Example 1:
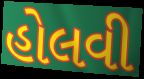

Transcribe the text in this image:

હોલવી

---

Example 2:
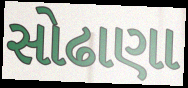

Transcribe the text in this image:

સોઢાણા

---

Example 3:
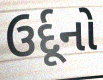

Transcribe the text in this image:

ઉર્દૂનો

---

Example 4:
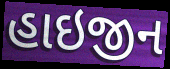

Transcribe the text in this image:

હાઇજીન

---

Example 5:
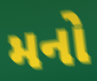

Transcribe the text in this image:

મનો